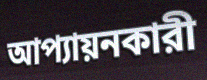
আপ্যায়নকারী